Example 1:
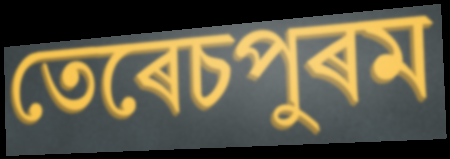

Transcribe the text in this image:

তেৰেচপুৰম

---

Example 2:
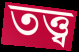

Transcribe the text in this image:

তত্ত্ব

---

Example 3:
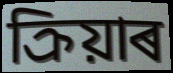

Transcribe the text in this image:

ক্ৰিয়াৰ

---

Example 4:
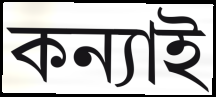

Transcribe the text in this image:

কন্যাই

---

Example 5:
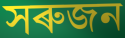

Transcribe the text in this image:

সৰুজন